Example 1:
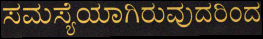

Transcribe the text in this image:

ಸಮಸ್ಯೆಯಾಗಿರುವುದರಿಂದ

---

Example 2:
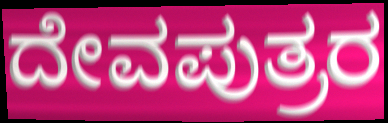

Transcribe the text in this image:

ದೇವಪುತ್ರರ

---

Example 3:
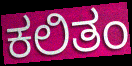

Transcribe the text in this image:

ಕಲಿತಂ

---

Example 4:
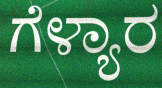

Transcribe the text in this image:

ಗೆಳ್ಯಾರ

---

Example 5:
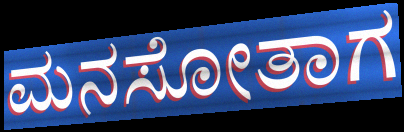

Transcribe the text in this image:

ಮನಸೋತಾಗ